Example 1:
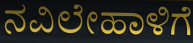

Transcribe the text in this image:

ನವಿಲೇಹಾಳಿಗೆ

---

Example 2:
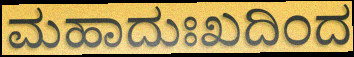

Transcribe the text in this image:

ಮಹಾದುಃಖದಿಂದ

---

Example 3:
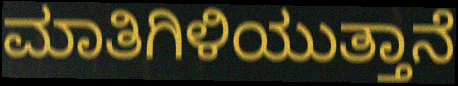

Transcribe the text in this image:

ಮಾತಿಗಿಳಿಯುತ್ತಾನೆ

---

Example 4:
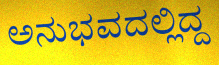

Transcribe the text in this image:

ಅನುಭವದಲ್ಲಿದ್ದ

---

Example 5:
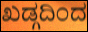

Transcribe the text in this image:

ಖಡ್ಗದಿಂದ